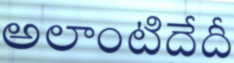
అలాంటిదేదీ